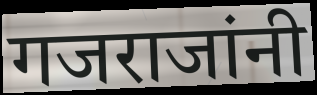
गजराजांनी